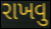
રાખવુ